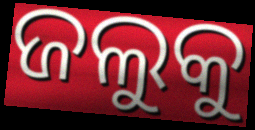
ଜଲୁକୁ